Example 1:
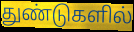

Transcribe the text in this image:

துண்டுகளில்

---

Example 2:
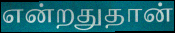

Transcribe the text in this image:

என்றதுதான்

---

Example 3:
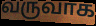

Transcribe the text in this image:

வருவாக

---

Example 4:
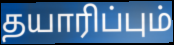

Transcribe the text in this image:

தயாரிப்பும்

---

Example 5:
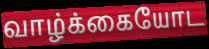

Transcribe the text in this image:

வாழ்க்கையோட